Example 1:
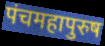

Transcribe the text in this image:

पंचमहापुरुष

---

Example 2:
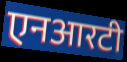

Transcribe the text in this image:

एनआरटी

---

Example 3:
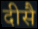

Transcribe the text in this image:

दीसै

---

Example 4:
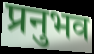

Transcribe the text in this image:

प्रनुभव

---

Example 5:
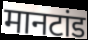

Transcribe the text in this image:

मानटांड